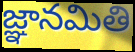
జ్ఞానమితి